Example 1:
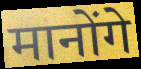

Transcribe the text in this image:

मानोंगे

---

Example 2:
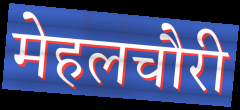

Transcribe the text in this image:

मेहलचौरी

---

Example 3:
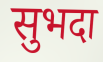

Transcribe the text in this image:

सुभदा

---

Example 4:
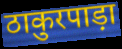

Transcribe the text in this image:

ठाकुरपाड़ा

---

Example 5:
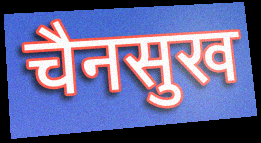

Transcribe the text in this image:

चैनसुख